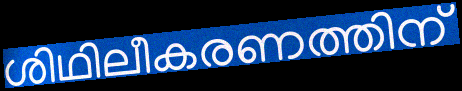
ശിഥിലീകരണത്തിന്